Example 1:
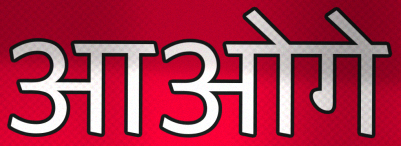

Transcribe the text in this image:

आओगे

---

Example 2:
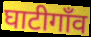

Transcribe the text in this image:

घाटीगाँव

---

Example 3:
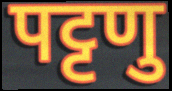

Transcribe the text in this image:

पट्टणु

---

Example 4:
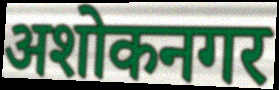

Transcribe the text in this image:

अशोकनगर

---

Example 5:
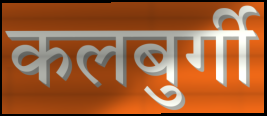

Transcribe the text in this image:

कलबुर्गी